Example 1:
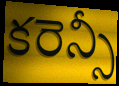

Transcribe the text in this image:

కరెన్సీ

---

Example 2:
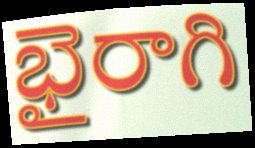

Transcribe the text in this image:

భైరాగి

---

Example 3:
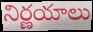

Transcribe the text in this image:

నిర్ణయాలు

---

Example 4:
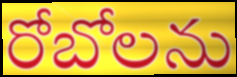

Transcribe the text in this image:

రోబోలను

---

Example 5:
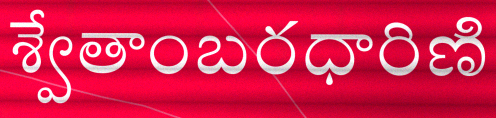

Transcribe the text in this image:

శ్వేతాంబరధారిణి